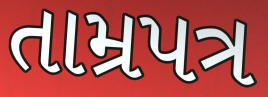
તામ્રપત્ર